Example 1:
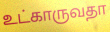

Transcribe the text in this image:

உட்காருவதா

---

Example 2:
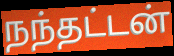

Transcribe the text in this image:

நந்தட்டன்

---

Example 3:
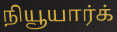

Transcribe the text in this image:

நியூயார்க்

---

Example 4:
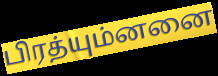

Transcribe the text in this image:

பிரத்யும்னனை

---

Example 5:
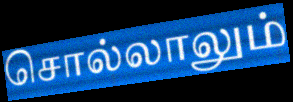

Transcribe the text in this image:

சொல்லாலும்